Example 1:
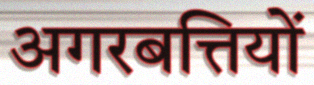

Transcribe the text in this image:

अगरबत्तियों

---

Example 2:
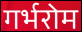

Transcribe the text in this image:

गर्भरोम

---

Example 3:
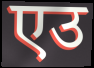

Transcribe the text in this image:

एउ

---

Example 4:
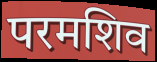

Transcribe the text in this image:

परमशिव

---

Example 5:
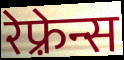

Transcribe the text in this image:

रेफ़्रेन्स